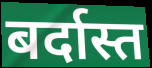
बर्दास्त